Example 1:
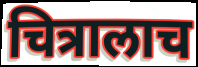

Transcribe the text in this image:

चित्रालाच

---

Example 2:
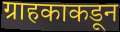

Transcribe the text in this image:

ग्राहकाकडून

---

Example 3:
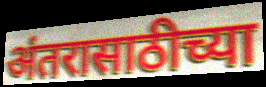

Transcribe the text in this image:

अंतरासाठीच्या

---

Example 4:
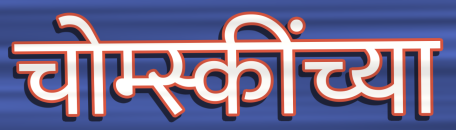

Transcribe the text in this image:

चोम्स्कींच्या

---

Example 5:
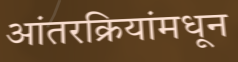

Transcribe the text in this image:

आंतरक्रियांमधून